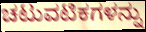
ಚಟುವಟಿಕಗಳನ್ನು